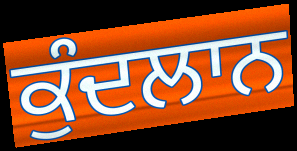
ਕੁੰਦਲਾਨ